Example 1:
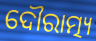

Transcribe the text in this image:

ଦୌରାତ୍ମ୍ୟ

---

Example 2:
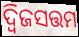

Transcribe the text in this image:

ଦ୍ୱିଜସତ୍ତମ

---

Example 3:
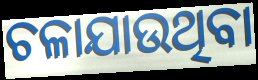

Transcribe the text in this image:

ଚଳାଯାଉଥିବା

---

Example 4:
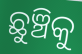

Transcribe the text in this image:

ଛୁଞ୍ଚିକୁ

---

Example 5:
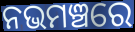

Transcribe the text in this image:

ନଭମଞ୍ଚରେ